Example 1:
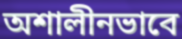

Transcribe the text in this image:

অশালীনভাবে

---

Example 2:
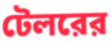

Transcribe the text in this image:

টেলরের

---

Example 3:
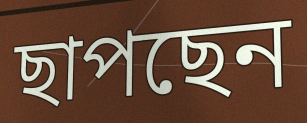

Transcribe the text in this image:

ছাপছেন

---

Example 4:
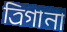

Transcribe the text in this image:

ত্রিগানা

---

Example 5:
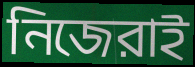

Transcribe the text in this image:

নিজেরাই